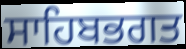
ਸਾਹਿਬਭਗਤ